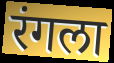
रंगला